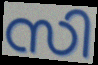
സി